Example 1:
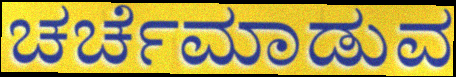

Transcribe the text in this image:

ಚರ್ಚೆಮಾಡುವ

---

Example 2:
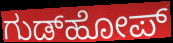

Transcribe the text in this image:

ಗುಡ್‌ಹೋಪ್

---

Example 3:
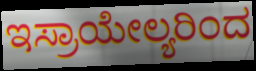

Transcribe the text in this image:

ಇಸ್ರಾಯೇಲ್ಯರಿಂದ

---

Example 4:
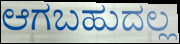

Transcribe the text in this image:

ಆಗಬಹುದಲ್ಲ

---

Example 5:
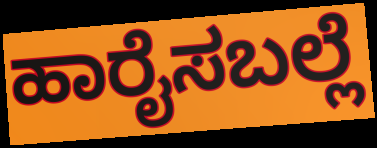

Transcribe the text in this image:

ಹಾರೈಸಬಲ್ಲೆ